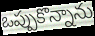
ఒప్పుకొన్నాను